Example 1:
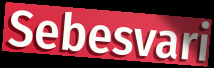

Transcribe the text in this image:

Sebesvari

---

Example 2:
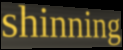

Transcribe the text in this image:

shinning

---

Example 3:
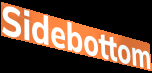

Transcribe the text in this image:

Sidebottom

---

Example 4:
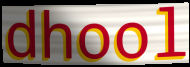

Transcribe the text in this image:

dhool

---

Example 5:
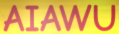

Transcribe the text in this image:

AIAWU